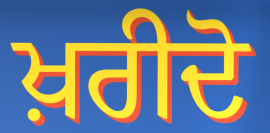
ਖ਼ਰੀਦੋ